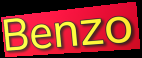
Benzo